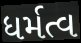
ધર્મત્વ